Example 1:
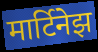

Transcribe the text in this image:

मार्टिनेझ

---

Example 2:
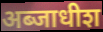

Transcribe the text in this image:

अब्जाधीश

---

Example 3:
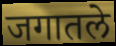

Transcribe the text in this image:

जगातले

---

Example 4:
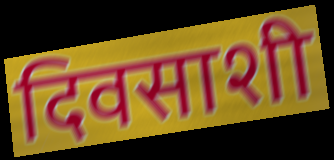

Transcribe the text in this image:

दिवसाशी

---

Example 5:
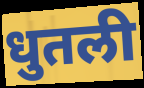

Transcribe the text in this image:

धुतली